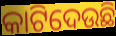
କାଟିଦେଉଛି